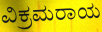
ವಿಕ್ರಮರಾಯ